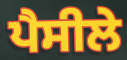
ਪੈਸੀਲੇ